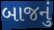
બાજનું